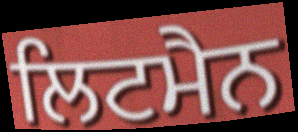
ਲਿਟਮੈਨ